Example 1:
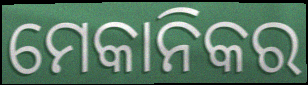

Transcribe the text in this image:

ମେକାନିକର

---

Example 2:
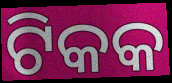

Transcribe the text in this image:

ଟିକକ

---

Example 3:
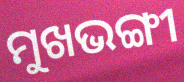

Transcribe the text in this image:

ମୁଖଭଙ୍ଗୀ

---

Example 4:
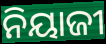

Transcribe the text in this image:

ନିୟାଜୀ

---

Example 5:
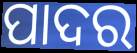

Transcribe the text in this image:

ପାଦର